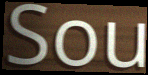
Sou